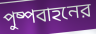
পুষ্পবাহনের